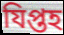
যিপ্তহ